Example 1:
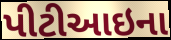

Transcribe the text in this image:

પીટીઆઇના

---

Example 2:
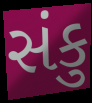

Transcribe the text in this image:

સંકુ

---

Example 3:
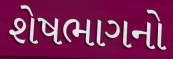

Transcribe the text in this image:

શેષભાગનો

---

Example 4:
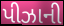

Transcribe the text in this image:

પીઝાની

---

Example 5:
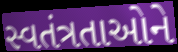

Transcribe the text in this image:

સ્વતંત્રતાઓને